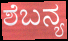
ಶೆಬನ್ಯ